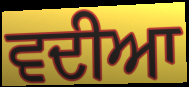
ਵਦੀਆ